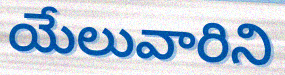
యేలువారిని